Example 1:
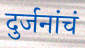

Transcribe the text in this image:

दुर्जनांचं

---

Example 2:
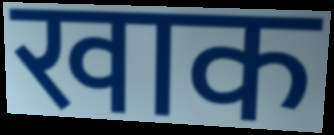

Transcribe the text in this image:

खाक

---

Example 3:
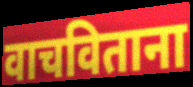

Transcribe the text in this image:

वाचविताना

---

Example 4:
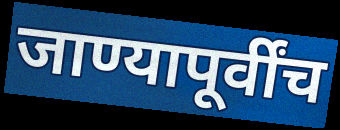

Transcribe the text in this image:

जाण्यापूर्वींच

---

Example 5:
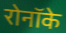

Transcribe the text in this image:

रोनॉके